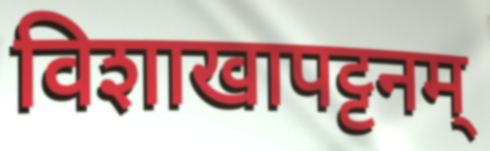
विशाखापट्टनम्